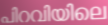
പിറവിയിലെ